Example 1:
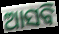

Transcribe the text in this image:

ଆସବି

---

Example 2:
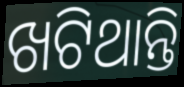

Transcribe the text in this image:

ଖଟିଥାନ୍ତି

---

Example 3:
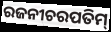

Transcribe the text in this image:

ରଜନୀଚରପତିମ୍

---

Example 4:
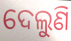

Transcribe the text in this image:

ଦେଲୁଣି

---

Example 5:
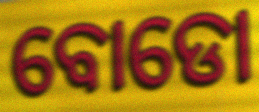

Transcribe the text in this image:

ବୋଡୋ